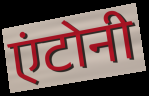
एंटोनी